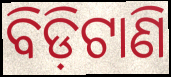
ବିଡ଼ିଟାଣି